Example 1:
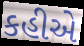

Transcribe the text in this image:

કહીએ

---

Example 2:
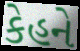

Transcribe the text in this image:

કેહને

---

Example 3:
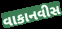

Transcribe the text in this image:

વાકાનવીસ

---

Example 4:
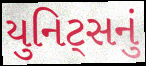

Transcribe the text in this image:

યુનિટ્સનું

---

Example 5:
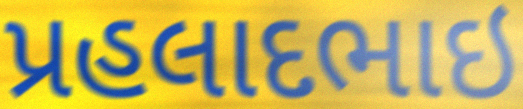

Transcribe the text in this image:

પ્રહલાદભાઇ